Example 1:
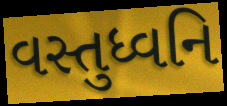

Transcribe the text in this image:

વસ્તુધ્વનિ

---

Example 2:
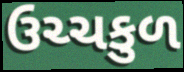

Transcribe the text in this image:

ઉચ્ચકુળ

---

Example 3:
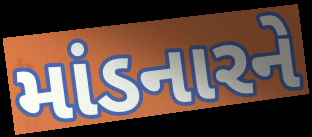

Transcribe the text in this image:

માંડનારને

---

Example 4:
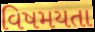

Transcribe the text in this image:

વિષમયતા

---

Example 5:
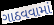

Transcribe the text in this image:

ગાઠવવામાં